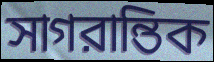
সাগরান্তিক